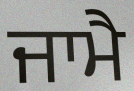
ਜਾਮੈ